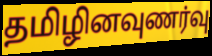
தமிழினவுணர்வு